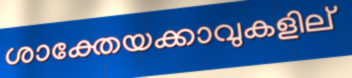
ശാക്തേയക്കാവുകളില്